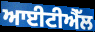
ਆਈਟੀਐੱਲ